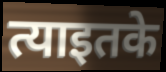
त्याइतके